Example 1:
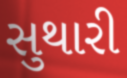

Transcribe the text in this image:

સુથારી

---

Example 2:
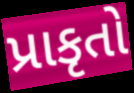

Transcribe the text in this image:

પ્રાકૃતો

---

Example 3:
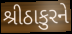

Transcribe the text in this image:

શ્રીઠાકુરને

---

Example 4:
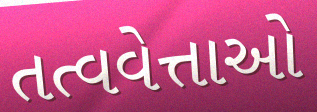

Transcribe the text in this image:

તત્વવેત્તાઓ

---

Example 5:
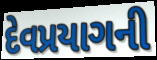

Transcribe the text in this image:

દેવપ્રયાગની